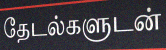
தேடல்களுடன்